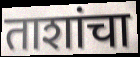
ताशांचा